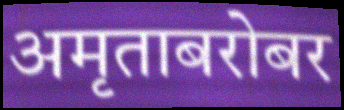
अमृताबरोबर